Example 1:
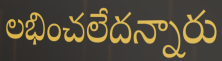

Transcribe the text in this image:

లభించలేదన్నారు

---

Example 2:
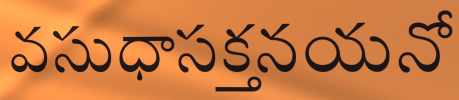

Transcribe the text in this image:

వసుధాసక్తనయనో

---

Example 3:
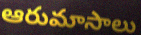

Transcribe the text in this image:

ఆరుమాసాలు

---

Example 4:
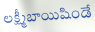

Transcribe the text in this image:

లక్ష్మీబాయిషిండే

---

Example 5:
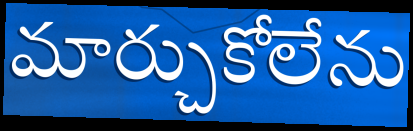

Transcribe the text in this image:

మార్చుకోలేను